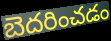
బెదరించడం